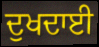
ਦੁਖਦਾਈ